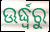
ଊର୍ଦ୍ଧ୍ଵରୁ